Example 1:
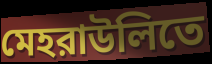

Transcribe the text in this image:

মেহরাউলিতে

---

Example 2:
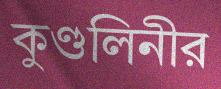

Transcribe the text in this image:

কুণ্ডলিনীর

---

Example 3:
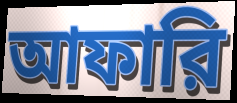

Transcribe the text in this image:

আফারি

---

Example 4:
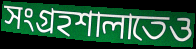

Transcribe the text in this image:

সংগ্রহশালাতেও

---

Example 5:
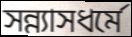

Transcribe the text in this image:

সন্ন্যাসধর্মে